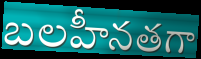
బలహీనతగా